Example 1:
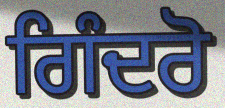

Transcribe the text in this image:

ਗਿੰਦਰੋ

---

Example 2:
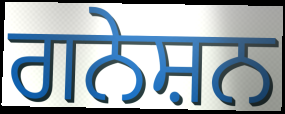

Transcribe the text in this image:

ਗਨੇਸ਼ਨ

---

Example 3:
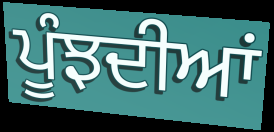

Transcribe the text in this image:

ਪੂੰਝਦੀਆਂ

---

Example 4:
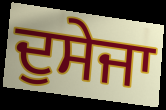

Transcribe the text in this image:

ਦੁਸੇਜਾ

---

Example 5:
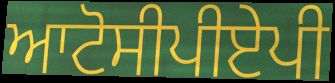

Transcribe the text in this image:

ਆਟੋਸੀਪੀਏਪੀ